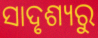
ସାଦୃଶ୍ୟରୁ